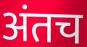
अंतच